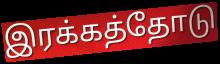
இரக்கத்தோடு